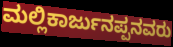
ಮಲ್ಲಿಕಾರ್ಜುನಪ್ಪನವರು